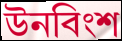
উনবিংশ